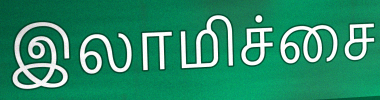
இலாமிச்சை